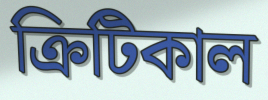
ক্রিটিকাল